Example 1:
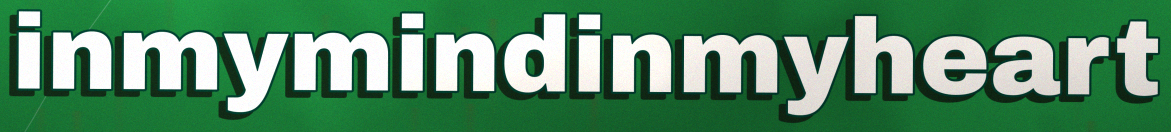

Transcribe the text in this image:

inmymindinmyheart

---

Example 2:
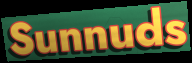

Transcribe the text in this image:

Sunnuds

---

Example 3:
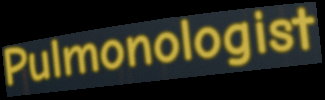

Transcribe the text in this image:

Pulmonologist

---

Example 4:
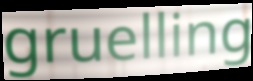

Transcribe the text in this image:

gruelling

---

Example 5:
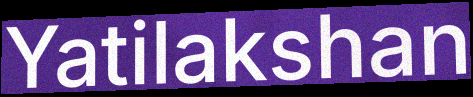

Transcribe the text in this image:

Yatilakshan